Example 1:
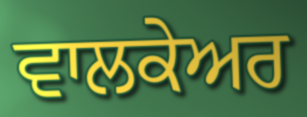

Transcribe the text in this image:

ਵਾਲਕੇਅਰ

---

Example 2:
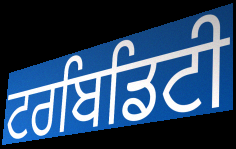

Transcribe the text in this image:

ਟਰਬਿਡਿਟੀ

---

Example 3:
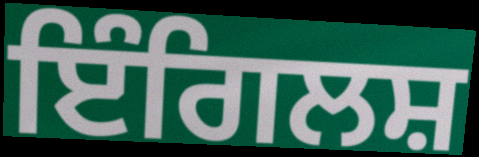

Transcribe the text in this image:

ਇੰਗਿਲਸ਼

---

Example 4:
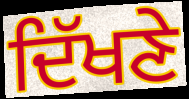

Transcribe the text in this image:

ਦਿੱਖਣੇ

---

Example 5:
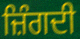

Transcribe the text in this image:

ਜ਼ਿੰਗਦੀ